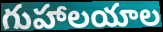
గుహాలయాల